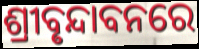
ଶ୍ରୀବୃନ୍ଦାବନରେ